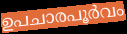
ഉപചാരപൂർവം